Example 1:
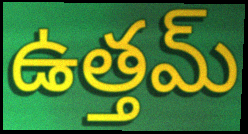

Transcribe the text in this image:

ఉత్తమ్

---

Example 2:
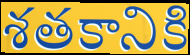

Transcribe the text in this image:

శతకానికి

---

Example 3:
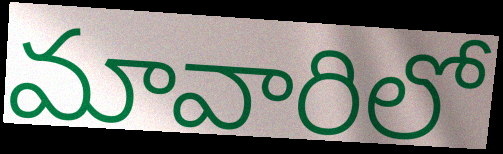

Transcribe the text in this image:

మావారిలో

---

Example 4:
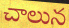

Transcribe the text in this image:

చాలున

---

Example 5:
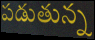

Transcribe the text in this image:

పడుతున్న